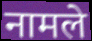
नामले